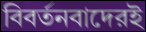
বিবর্তনবাদেরই